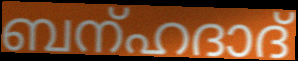
ബന്ഹദാദ്